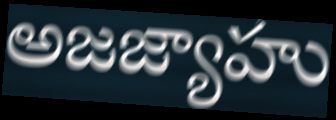
అజజ్యాహు